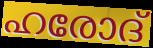
ഹരോദ്